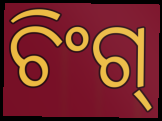
ଚିଂଗ୍